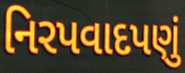
નિરપવાદપણું